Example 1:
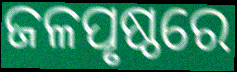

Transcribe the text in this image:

ଜଳପୃଷ୍ଠରେ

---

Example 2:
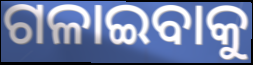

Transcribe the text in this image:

ଗଳାଇବାକୁ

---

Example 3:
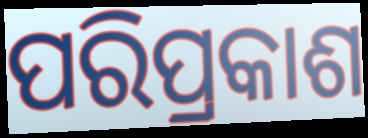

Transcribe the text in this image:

ପରିପ୍ରକାଶ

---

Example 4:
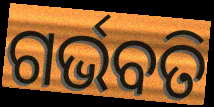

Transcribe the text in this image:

ଗର୍ଭବତି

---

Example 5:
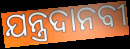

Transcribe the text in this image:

ଯନ୍ତ୍ରଦାନବୀ